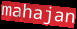
mahajan